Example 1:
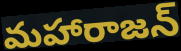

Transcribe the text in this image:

మహారాజన్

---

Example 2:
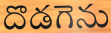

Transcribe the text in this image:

దొడగెను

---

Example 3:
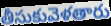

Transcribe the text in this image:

తీసుకువెళతారు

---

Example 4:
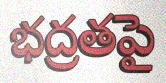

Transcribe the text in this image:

భద్రతపై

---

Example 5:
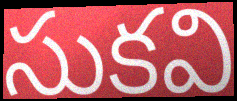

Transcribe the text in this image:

సుకవి